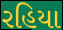
રહિયા